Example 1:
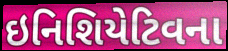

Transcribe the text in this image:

ઇનિશિયેટિવના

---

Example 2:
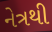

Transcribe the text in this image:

નેત્રથી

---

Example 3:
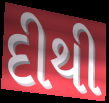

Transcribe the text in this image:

દીથી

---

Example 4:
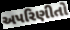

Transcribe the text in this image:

અપરિણીતો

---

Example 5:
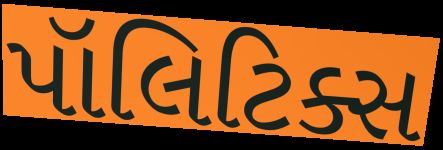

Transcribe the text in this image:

પૉલિટિક્સ